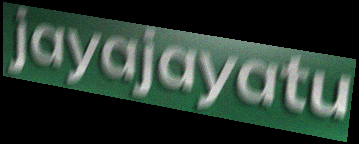
jayajayatu